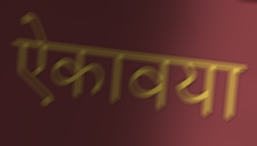
ऐकावया